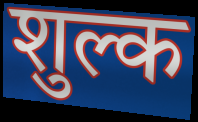
शुल्‍क